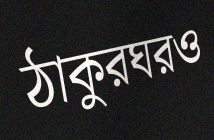
ঠাকুরঘরও